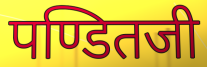
पण्डितजी